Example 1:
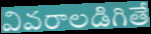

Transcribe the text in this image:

వివరాలడిగితే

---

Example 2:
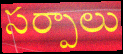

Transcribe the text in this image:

సర్పాలు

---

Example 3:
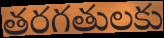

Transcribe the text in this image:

తరగతులకు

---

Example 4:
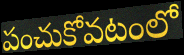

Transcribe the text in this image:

పంచుకోవటంలో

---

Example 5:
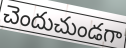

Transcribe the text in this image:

చెందుచుండగా